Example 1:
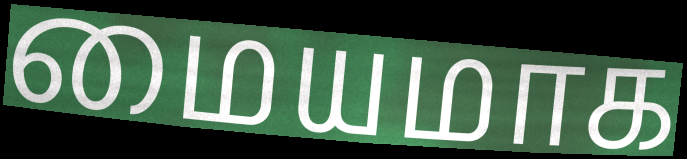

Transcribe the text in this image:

மையமாக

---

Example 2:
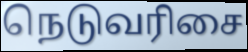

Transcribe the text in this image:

நெடுவரிசை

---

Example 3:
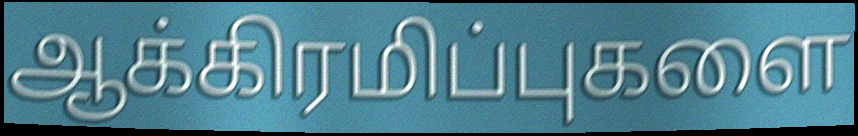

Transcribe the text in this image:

ஆக்கிரமிப்புகளை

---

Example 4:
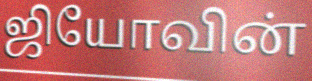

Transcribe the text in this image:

ஜியோவின்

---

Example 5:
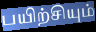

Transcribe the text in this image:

பயிற்சியும்